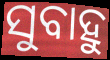
ସୁବାହୁ